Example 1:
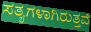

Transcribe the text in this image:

ಸತ್ಯಗಳಾಗಿರುತ್ತವೆ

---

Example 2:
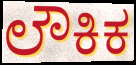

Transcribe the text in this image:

ಲೌಕಿಕ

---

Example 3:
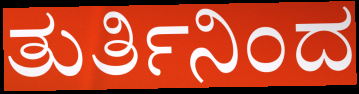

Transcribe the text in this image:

ತುರ್ತಿನಿಂದ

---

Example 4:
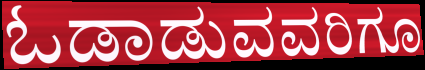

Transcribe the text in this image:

ಓಡಾಡುವವರಿಗೂ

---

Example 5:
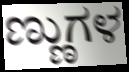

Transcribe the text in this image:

ಣ್ಣುಗಳ